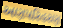
અણપરિહરણ